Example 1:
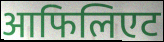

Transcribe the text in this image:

आफिलिएट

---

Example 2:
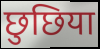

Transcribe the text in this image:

छुछिया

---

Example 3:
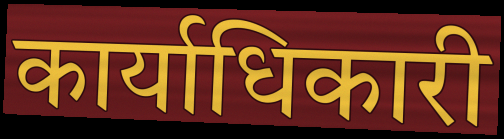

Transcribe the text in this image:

कार्याधिकारी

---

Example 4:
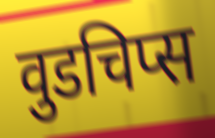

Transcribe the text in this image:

वुडचिप्स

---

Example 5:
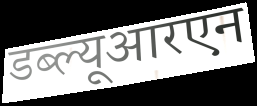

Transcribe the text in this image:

डब्ल्यूआरएन